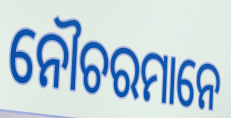
ନୌଚରମାନେ